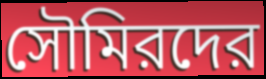
সৌমিরদের